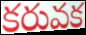
కరువక